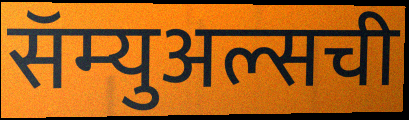
सॅम्युअल्सची